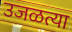
उजळत्या